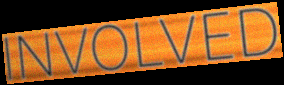
INVOLVED